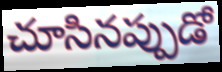
చూసినప్పుడో